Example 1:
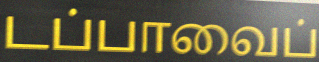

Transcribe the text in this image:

டப்பாவைப்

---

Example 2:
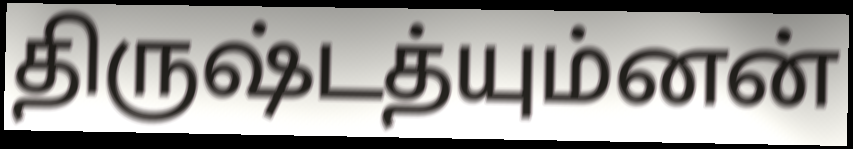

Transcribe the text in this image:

திருஷ்டத்யும்னன்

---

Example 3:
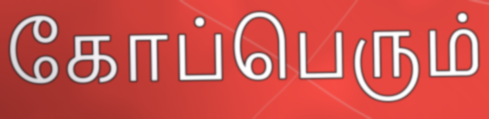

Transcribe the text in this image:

கோப்பெரும்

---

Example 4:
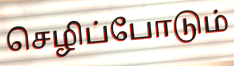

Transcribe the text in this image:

செழிப்போடும்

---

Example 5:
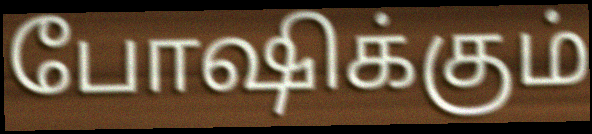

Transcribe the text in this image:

போஷிக்கும்